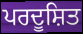
ਪਰਦੂਸ਼ਿਤ